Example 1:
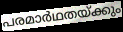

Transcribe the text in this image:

പരമാർഥതയ്ക്കും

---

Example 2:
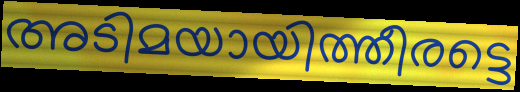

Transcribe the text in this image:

അടിമയായിത്തീരട്ടെ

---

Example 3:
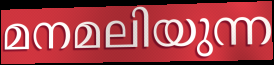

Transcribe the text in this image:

മനമലിയുന്ന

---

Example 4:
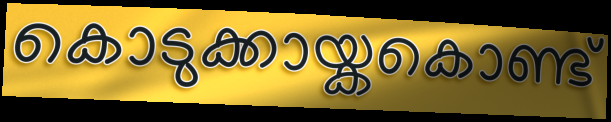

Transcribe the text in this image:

കൊടുക്കായ്കകൊണ്ട്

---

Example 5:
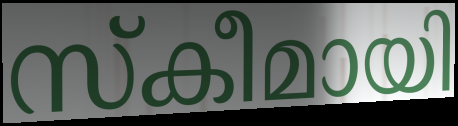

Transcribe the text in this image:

സ്കീമായി